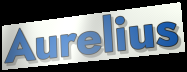
Aurelius